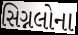
સિગ્નલોના